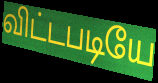
விட்டபடியே